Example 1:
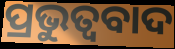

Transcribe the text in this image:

ପ୍ରଭୁତ୍ବବାଦ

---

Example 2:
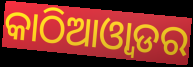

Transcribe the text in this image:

କାଠିଆଓ୍ୱାଡର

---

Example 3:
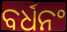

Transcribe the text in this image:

ବର୍ଧନଂ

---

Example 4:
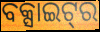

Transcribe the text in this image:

ବକ୍ସାଇଟ୍‌ର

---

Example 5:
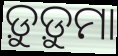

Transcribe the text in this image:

ଡ଼ୁଡ଼ୁମା